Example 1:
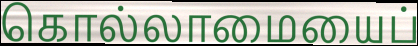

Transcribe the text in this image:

கொல்லாமையைப்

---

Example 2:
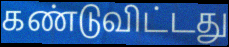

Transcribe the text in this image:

கண்டுவிட்டது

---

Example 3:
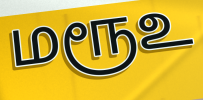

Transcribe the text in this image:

மரூஉ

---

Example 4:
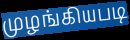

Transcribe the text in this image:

முழங்கியபடி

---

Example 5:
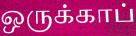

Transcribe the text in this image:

ஒருக்காப்